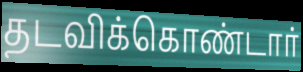
தடவிக்கொண்டார்